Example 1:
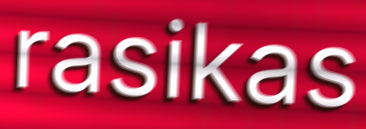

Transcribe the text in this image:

rasikas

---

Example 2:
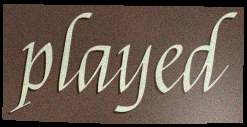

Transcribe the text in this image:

played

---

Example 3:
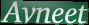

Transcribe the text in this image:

Avneet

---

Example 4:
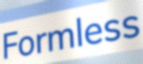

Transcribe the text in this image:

Formless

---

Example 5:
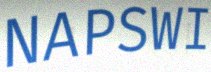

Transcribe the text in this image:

NAPSWI